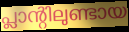
പ്ലാന്റിലുണ്ടായ